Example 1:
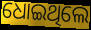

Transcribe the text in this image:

ଧୋଇଥିଲେ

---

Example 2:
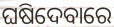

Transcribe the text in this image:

ଘଷିଦେବାରେ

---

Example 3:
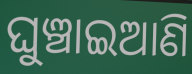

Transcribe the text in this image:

ଘୁଞ୍ଚାଇଆଣି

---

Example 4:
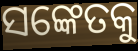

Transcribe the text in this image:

ସଙ୍କେତକୁ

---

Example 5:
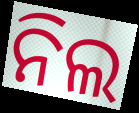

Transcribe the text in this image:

ନିଲ